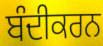
ਬੰਦੀਕਰਨ